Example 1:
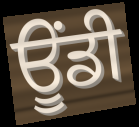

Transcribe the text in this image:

ਊਂਡੀ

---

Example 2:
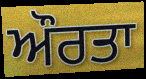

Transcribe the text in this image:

ਔਰਤਾ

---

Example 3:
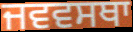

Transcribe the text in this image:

ਜਵਵਸਥਾ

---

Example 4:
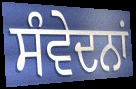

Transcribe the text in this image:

ਸੰਵੇਦਨਾਂ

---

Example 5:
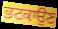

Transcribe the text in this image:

ਭਟਕਾਉਣ